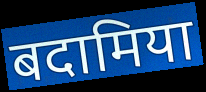
बदामिया